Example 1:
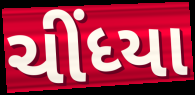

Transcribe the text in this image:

ચીંધ્યા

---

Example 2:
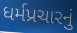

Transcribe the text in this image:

ધર્મપ્રચારનું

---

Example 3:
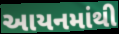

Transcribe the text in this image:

આયનમાંથી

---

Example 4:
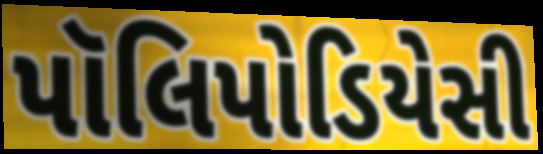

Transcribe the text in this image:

પૉલિપોડિયેસી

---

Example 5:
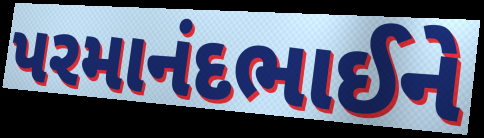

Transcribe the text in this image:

પરમાનંદભાઈને